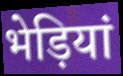
भेड़ियां